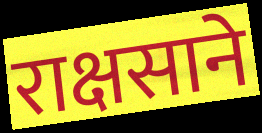
राक्षसाने